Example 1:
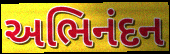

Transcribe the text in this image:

અભિનંદન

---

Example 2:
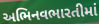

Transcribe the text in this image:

અભિનવભારતીમાં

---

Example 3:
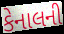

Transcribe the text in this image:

કેનાલની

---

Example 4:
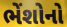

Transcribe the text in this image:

ભેંશોનો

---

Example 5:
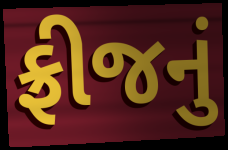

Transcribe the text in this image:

ફ્રીજનું